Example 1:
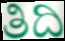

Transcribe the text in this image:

ತಿದಿ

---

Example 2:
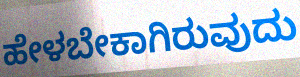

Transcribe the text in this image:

ಹೇಳಬೇಕಾಗಿರುವುದು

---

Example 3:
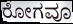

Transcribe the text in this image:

ರೋಗವೂ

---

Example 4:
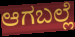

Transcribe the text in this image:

ಆಗಬಲ್ಲೆ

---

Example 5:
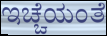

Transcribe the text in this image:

ಇಚ್ಚೆಯಂತೆ